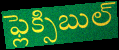
ఫ్లెక్సిబుల్